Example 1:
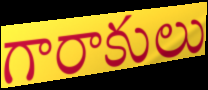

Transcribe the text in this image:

గారాకులు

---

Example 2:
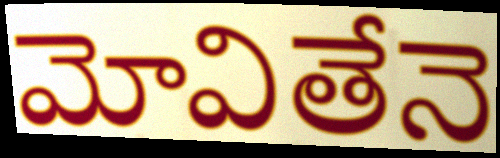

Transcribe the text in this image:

మోవితేనె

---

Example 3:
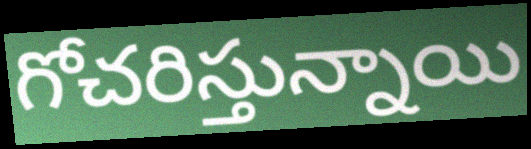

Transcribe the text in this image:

గోచరిస్తున్నాయి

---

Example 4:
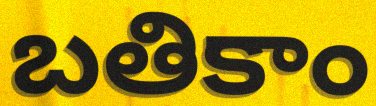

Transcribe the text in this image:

బతికాం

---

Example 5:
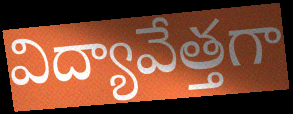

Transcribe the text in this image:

విద్యావేత్తగా